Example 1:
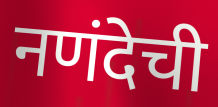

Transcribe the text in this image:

नणंदेची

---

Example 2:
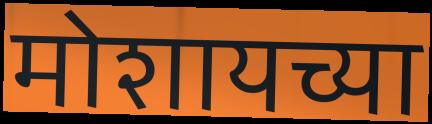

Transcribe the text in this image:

मोशायच्या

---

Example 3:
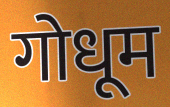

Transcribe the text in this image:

गोधूम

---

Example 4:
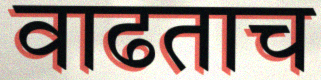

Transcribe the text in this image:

वाढताच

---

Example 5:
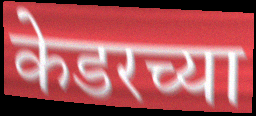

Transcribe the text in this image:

केडरच्या